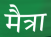
मैत्रा